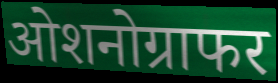
ओशनोग्राफर